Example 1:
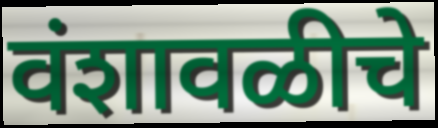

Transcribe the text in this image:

वंशावळीचे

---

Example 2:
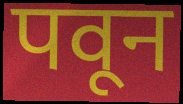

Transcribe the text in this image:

पवून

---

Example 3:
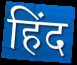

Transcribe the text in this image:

हिंद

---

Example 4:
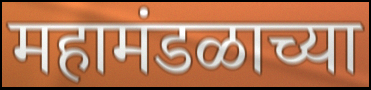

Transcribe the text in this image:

महामंडळाच्या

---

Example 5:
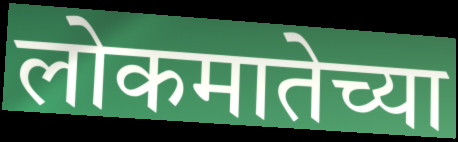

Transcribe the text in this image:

लोकमातेच्या